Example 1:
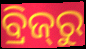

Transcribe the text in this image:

ବ୍ରିଜ୍‌ରୁ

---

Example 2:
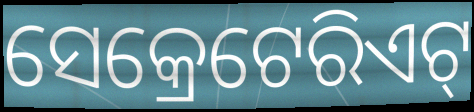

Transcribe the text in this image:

ସେକ୍ରେଟେରିଏଟ୍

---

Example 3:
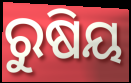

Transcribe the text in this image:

ରୁଷିୟ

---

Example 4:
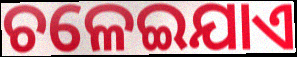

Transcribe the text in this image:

ଚଳେଇଯାଏ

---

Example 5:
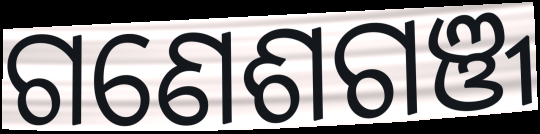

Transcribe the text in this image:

ଗଣେଶଗଞ୍ଜ